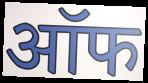
ऑफ